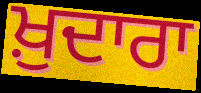
ਖ਼ੁਦਾਰਾ